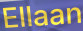
Ellaan